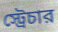
স্ট্রেচার